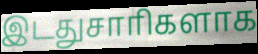
இடதுசாரிகளாக